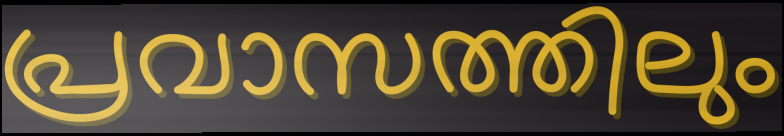
പ്രവാസത്തിലും